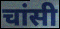
चांसी